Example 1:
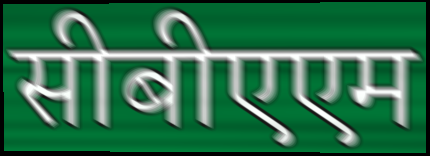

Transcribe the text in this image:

सीबीएएम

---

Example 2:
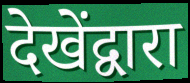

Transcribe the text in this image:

देखेंद्वारा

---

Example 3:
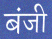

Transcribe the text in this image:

बंजी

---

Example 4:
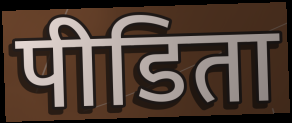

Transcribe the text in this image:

पीडिता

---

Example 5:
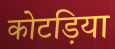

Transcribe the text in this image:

कोटड़िया